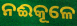
ନଈକୂଳେ